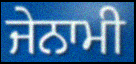
ਜੇਨਾਮੀ